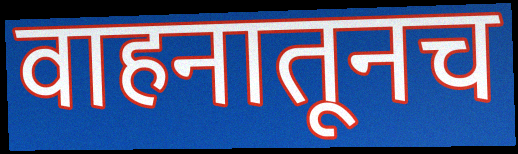
वाहनातूनच